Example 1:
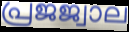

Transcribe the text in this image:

പ്രജജ്വാല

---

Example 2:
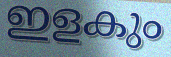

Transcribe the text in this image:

ഇളകും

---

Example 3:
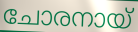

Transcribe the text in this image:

ചോരനായ്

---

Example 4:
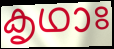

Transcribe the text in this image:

കൃഥാഃ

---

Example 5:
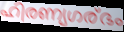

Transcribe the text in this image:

ഹിരണ്യഗര്ഭം